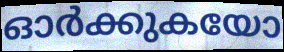
ഓർക്കുകയോ